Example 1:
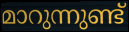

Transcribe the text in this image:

മാറുന്നുണ്ട്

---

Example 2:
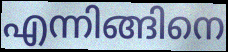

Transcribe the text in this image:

എന്നിങ്ങിനെ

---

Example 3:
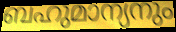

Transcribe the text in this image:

ബഹുമാന്യനും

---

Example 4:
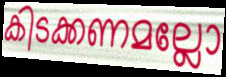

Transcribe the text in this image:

കിടക്കണമല്ലോ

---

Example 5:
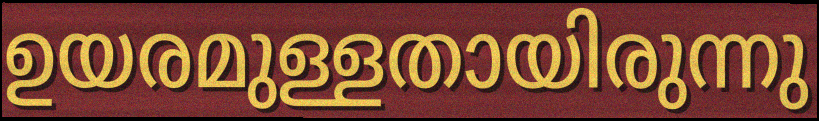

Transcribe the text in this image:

ഉയരമുള്ളതായിരുന്നു